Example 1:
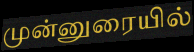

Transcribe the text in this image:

முன்னுரையில்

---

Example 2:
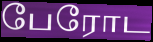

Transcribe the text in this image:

பேரோட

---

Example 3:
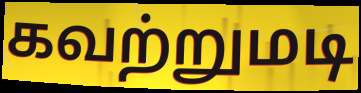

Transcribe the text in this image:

கவற்றுமடி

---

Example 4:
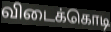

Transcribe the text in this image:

விடைக்கொடி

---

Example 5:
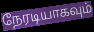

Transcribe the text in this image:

நேரடியாகவும்